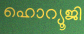
ഹൊറ്യൂജി